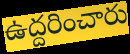
ఉద్దరించారు